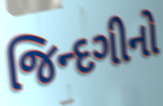
જિન્દગીનો